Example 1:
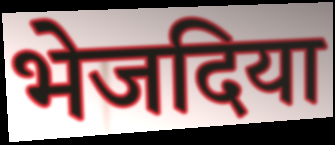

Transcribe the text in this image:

भेजदिया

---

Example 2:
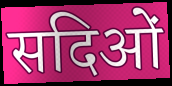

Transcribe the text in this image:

सदिओं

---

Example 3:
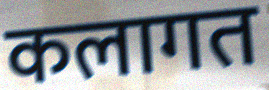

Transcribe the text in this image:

कलागत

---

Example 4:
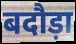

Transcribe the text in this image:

बदौड़ा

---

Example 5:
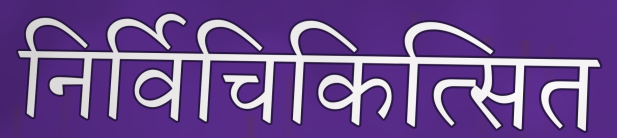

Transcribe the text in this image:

निर्विचिकित्सित